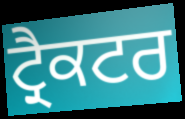
ਟ੍ਰੈਕਟਰ